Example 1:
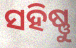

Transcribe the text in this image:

ସହିଷ୍ଣୁ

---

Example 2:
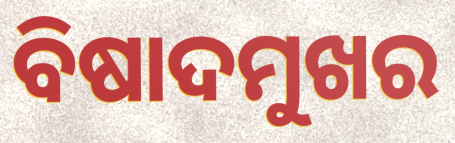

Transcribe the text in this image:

ବିଷାଦମୁଖର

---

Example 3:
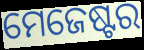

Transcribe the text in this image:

ମେଜେଷ୍ଟର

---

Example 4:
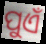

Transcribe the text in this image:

ପୁଏଁ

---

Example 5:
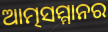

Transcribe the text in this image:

ଆତ୍ମସମ୍ମାନର